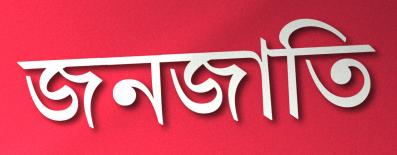
জনজাতি